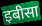
इबीसा